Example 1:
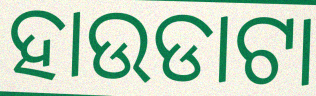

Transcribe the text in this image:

ହାଉଡାଟା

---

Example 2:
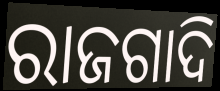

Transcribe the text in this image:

ରାଜଗାଦି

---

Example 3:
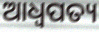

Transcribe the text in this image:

ଆଧ୍ଵପତ୍ୟ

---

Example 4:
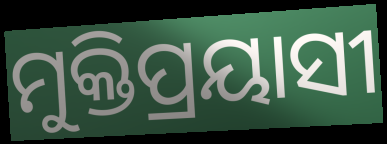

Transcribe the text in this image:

ମୁକ୍ତିପ୍ରୟାସୀ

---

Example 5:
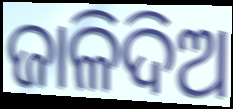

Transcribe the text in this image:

ଜାଳିଦିଅ